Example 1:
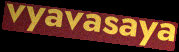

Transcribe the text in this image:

vyavasaya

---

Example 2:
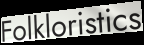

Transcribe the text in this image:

Folkloristics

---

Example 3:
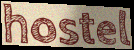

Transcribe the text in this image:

hostel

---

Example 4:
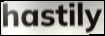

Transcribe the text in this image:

hastily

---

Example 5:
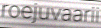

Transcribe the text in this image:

roejuvaarii